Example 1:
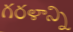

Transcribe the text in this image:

గరళాన్ని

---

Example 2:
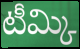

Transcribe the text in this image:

టీమ్కి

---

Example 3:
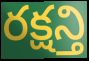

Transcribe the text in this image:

రక్షన్తి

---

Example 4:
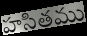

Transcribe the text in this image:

హసితము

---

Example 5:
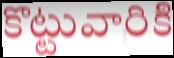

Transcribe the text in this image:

కొట్టువారికి